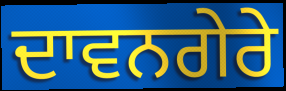
ਦਾਵਨਗੇਰੇ